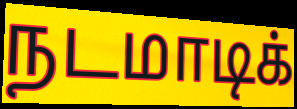
நடமாடிக்